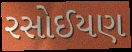
રસોઈયણ